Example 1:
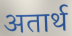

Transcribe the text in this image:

अतार्थ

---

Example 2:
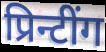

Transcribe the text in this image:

प्रिन्टींग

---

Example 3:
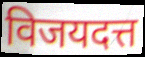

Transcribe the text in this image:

विजयदत्त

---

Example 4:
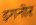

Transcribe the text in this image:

इगनोर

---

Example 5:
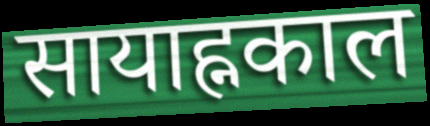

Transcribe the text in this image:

सायाह्नकाल